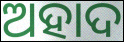
ଅହାଦ